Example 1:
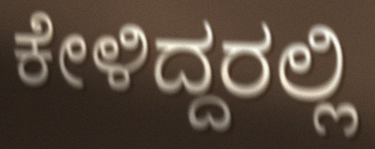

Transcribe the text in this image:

ಕೇಳಿದ್ದರಲ್ಲಿ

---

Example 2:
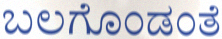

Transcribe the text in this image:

ಬಲಗೊಂಡಂತೆ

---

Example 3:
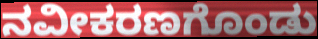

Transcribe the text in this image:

ನವೀಕರಣಗೊಂಡು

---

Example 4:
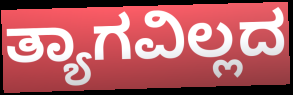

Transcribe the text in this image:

ತ್ಯಾಗವಿಲ್ಲದ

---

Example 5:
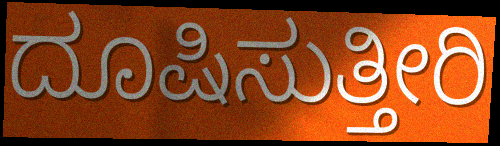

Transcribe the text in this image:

ದೂಷಿಸುತ್ತೀರಿ